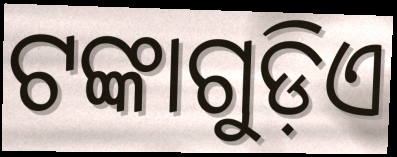
ଟଙ୍କାଗୁଡ଼ିଏ